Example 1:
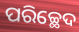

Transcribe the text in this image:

ପରିଚ୍ଛେଦ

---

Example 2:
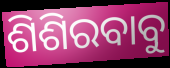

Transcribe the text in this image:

ଶିଶିରବାବୁ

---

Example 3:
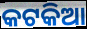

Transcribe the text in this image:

କଟକିଆ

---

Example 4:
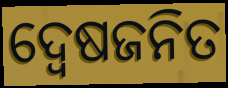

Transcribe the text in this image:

ଦ୍ଵେଷଜନିତ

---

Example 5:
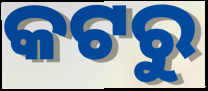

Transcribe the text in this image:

କଟରୁ